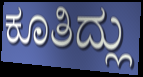
ಕೂತಿದ್ಲು